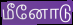
மீனோடு